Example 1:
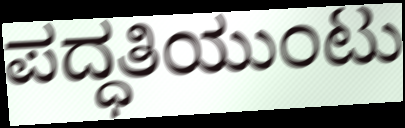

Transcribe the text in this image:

ಪದ್ಧತಿಯುಂಟು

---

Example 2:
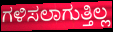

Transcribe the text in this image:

ಗಳಿಸಲಾಗುತ್ತಿಲ್ಲ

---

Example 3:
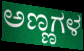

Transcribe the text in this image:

ಅಣ್ಣಗಳ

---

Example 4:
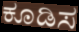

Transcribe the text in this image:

ಕೂಡಿಸ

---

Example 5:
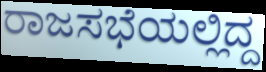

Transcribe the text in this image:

ರಾಜಸಭೆಯಲ್ಲಿದ್ದ